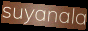
suyanala